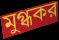
মুগ্ধকর